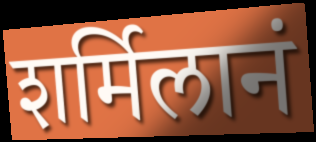
शर्मिलानं